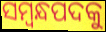
ସମ୍ବନ୍ଧପଦକୁ